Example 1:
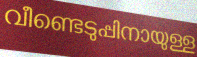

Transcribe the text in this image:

വീണ്ടെടുപ്പിനായുള്ള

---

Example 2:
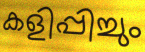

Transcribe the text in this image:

കളിപ്പിച്ചും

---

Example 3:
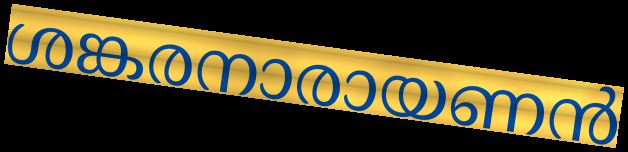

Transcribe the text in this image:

ശങ്കരനാരായണൻ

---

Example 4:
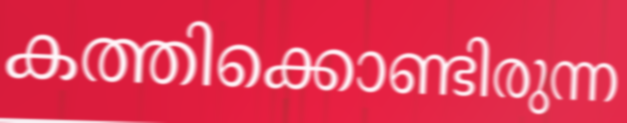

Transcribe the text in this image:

കത്തിക്കൊണ്ടിരുന്ന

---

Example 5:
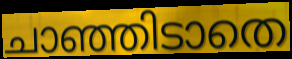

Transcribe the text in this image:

ചാഞ്ഞിടാതെ